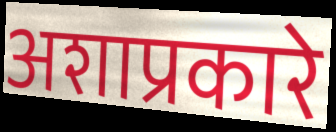
अशाप्रकारे